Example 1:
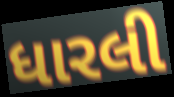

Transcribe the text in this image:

ધારલી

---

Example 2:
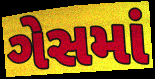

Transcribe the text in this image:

ગેસમાં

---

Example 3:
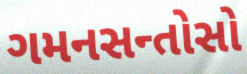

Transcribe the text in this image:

ગમનસન્તોસો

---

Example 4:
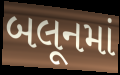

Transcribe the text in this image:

બલૂનમાં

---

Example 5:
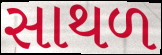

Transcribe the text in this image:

સાથળ